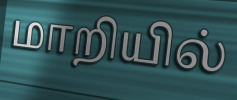
மாறியில்